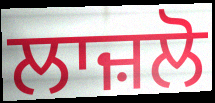
ਲਾਜ਼ਲੋ